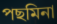
পছমিনা